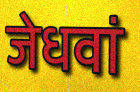
जेधवां